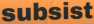
subsist